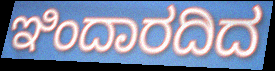
ಇಿಂದಾರದಿದ